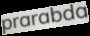
prarabda